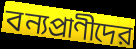
বন্যপ্রাণীদের